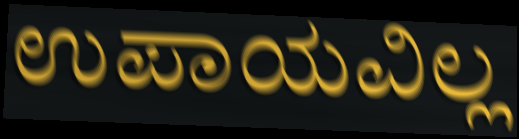
ಉಪಾಯವಿಲ್ಲ